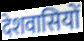
देशवासियों